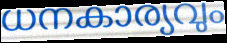
ധനകാര്യവും